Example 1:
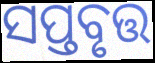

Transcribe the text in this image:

ସପ୍ତବୃତ୍ତ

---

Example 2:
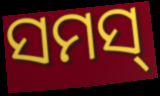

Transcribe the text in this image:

ସମସ୍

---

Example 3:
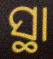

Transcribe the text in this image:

ସ୍ଥା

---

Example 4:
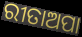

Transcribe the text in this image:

ରୀତାଅପା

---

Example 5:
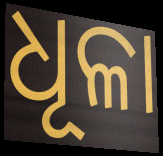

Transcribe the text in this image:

ଧୂଳା